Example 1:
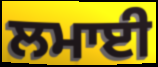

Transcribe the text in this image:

ਲਮਾਈ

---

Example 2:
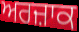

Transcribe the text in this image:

ਅਰਜ਼ਾਕ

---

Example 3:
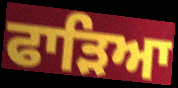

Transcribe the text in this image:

ਫਾੜਿਆ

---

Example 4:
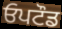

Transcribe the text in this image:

ਓਪਟੌਡ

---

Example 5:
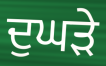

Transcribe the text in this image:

ਦੁਘੜੇ